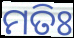
ମତିଃ